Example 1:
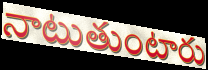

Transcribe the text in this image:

నాటుతుంటారు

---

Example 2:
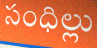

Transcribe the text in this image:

సంధిల్లు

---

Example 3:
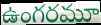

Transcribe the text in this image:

ఉంగరమూ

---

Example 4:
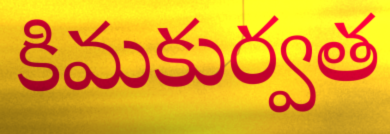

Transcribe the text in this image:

కిమకుర్వత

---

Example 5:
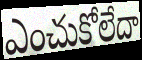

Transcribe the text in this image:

ఎంచుకోలేదా